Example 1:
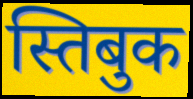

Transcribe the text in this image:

स्तिबुक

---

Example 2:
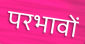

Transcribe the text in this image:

परभावों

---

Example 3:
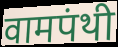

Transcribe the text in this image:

वामपंथी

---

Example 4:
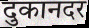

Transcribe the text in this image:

दुकानदर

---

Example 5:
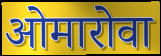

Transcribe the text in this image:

ओमारोवा